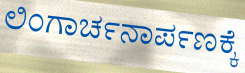
ಲಿಂಗಾರ್ಚನಾರ್ಪಣಕ್ಕೆ